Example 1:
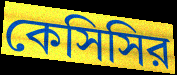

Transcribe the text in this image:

কেসিসির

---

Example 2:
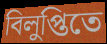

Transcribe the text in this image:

বিলুপ্তিতে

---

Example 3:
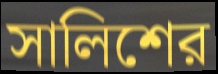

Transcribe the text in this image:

সালিশের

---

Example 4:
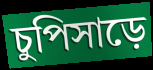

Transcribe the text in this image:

চুপিসাড়ে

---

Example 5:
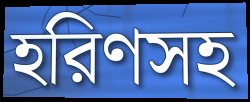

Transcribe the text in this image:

হরিণসহ